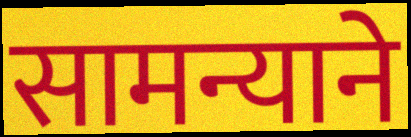
सामन्याने